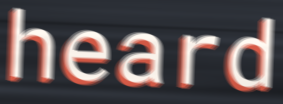
heard